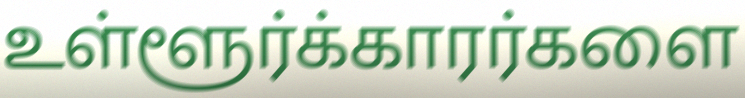
உள்ளூர்க்காரர்களை